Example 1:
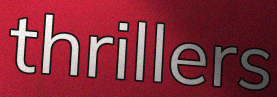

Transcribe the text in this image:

thrillers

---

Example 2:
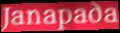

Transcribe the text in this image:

Janapada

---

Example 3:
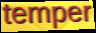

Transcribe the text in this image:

temper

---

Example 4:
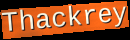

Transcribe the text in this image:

Thackrey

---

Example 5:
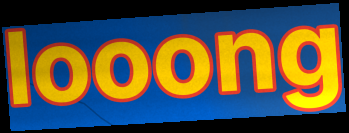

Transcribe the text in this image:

looong